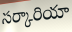
సర్కారియా